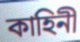
কাহিনী